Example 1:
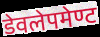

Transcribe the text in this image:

डेवलेपमेण्ट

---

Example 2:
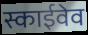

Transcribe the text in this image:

स्काईवेव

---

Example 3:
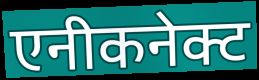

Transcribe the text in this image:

एनीकनेक्ट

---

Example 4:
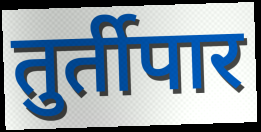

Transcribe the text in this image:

तुर्तीपार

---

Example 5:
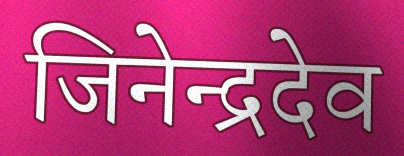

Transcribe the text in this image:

जिनेन्द्रदेव